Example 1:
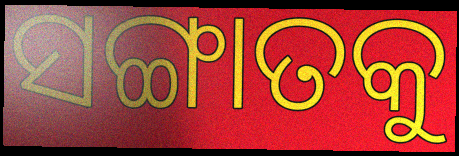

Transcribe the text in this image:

ସଙ୍ଗାତକୁ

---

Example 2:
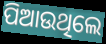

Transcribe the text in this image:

ପିଆଉଥିଲେ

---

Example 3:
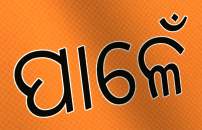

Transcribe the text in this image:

ପାଳେଁ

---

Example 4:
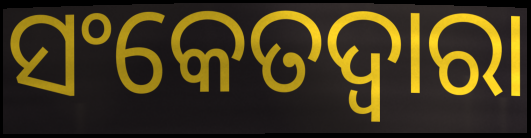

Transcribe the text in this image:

ସଂକେତଦ୍ୱାରା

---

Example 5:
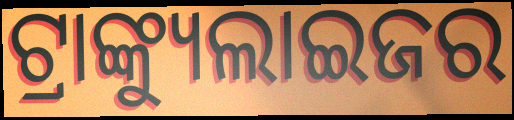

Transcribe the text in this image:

ଟ୍ରାଙ୍କ୍ୟୁଲାଇଜର